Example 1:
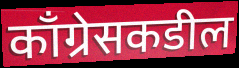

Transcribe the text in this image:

काँग्रेसकडील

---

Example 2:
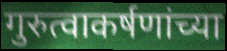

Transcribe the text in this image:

गुरुत्वाकर्षणांच्या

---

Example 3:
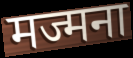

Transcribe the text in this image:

मज्मना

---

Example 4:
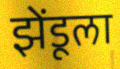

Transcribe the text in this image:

झेंडूला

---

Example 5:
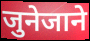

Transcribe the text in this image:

जुनेजाने